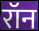
रॉन